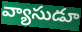
వ్యాసుడూ